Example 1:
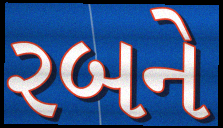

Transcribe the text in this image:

રબને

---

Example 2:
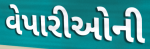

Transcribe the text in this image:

વેપારીઓની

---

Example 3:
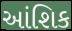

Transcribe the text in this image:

આંશિક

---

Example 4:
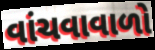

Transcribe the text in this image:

વાંચવાવાળો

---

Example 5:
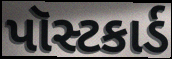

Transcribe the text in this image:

પૉસ્ટકાર્ડ